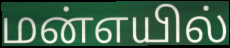
மன்எயில்